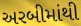
અરબીમાંથી